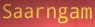
Saarngam